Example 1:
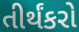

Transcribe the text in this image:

તીર્થંકરો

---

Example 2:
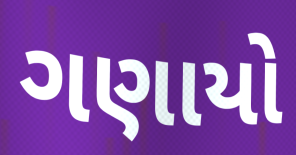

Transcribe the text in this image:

ગણાયો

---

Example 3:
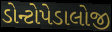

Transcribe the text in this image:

ડોન્ટોપેડાલોજી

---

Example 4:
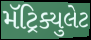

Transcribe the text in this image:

મૅટ્રિક્યુલેટ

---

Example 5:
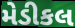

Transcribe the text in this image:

મેડીકલ